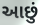
આછું